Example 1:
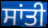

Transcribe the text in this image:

ਸਾਂਤੀ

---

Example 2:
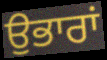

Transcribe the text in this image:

ਉਭਾਰਾਂ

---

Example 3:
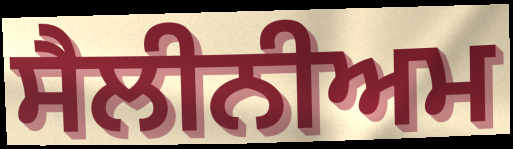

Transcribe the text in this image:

ਸੈਲੀਨੀਅਮ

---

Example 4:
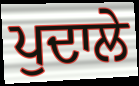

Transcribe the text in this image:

ਪੁਦਾਲੇ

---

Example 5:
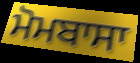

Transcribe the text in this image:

ਮੋਮਬਾਸਾ